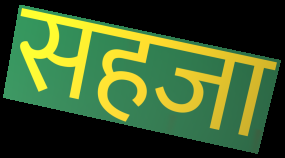
सहजा